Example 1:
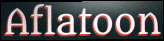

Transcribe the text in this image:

Aflatoon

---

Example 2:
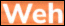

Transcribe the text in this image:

Weh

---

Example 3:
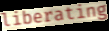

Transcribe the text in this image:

liberating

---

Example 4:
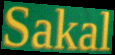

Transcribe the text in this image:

Sakal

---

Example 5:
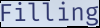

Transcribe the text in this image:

Filling